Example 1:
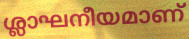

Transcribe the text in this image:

ശ്ലാഘനീയമാണ്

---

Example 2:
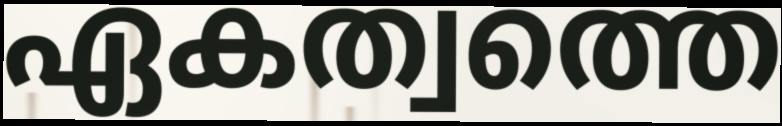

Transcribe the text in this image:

ഏകത്വത്തെ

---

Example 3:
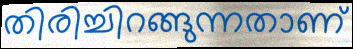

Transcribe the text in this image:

തിരിച്ചിറങ്ങുന്നതാണ്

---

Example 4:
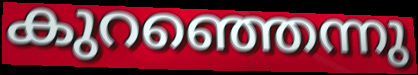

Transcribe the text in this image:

കുറഞ്ഞെന്നു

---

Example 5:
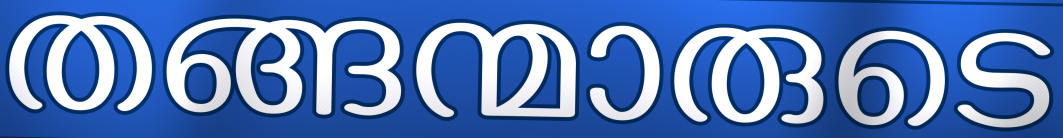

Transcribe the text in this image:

തങ്ങന്മാരുടെ